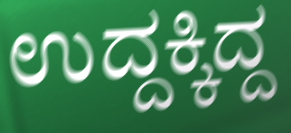
ಉದ್ದಕ್ಕಿದ್ದ